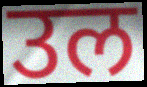
उल